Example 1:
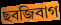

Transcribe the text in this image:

ছবজিবাগ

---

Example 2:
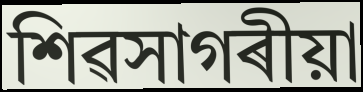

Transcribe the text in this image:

শিৱসাগৰীয়া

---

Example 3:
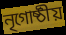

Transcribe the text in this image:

নৃগোষ্ঠীয়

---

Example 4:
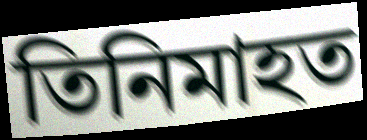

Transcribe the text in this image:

তিনিমাহত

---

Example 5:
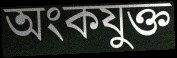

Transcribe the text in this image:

অংকযুক্ত